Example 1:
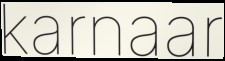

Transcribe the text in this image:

karnaar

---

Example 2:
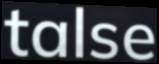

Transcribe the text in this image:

talse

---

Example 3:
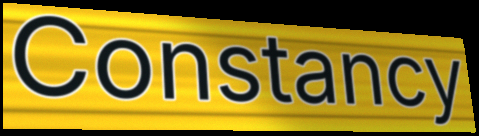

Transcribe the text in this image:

Constancy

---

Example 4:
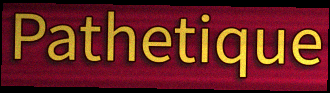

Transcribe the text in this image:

Pathetique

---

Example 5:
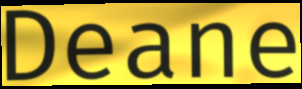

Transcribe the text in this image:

Deane